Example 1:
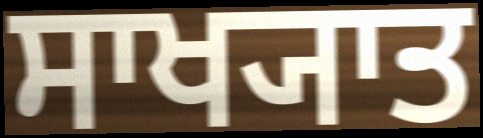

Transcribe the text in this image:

ਸਾਖ੍ਯਾਤ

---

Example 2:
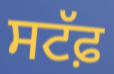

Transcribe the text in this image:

ਸਟੱਫ਼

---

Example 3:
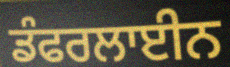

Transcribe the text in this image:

ਡੰਫਰਲਾਈਨ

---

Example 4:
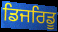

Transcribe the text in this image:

ਡਿਜਰਿਡੂ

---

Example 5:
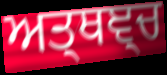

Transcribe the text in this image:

ਅਤ੍ਥਞ੍ਚ